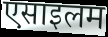
एसाइलम